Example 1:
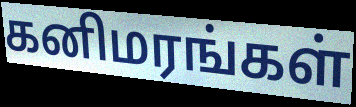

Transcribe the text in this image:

கனிமரங்கள்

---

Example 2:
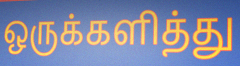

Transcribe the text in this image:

ஒருக்களித்து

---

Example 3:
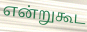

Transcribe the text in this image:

என்றுகூட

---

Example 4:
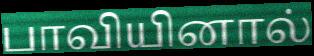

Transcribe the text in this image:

பாவியினால்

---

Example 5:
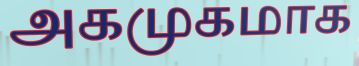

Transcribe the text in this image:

அகமுகமாக